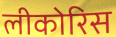
लीकोरिस